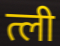
त्ली